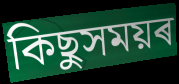
কিছুসময়ৰ